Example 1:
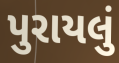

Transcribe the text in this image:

પુરાયલું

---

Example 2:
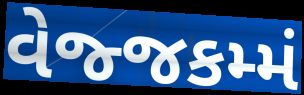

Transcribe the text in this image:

વેજ્જકમ્મં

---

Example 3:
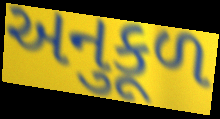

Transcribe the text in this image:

અનુકૂળ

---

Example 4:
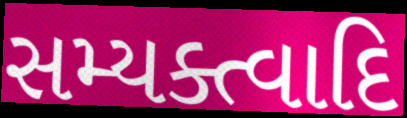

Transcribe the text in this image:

સમ્યક્ત્વાદિ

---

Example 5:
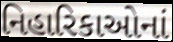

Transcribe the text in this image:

નિહારિકાઓનાં